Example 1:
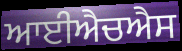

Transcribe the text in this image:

ਆਈਐਚਐਸ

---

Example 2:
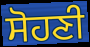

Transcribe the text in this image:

ਸੋਹਣੀ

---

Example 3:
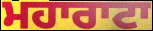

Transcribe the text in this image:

ਮਹਾਰਾਟਾ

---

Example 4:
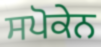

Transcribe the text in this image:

ਸਪੋਕੇਨ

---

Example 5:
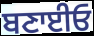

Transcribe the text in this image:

ਬਣਾਈਓ